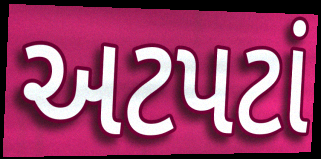
અટપટાં